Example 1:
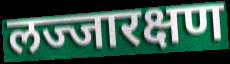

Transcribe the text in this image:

लज्जारक्षण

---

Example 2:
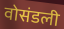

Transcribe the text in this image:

वोसंडली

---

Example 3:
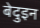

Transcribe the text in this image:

बेदुइन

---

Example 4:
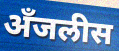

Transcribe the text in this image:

अँजलीस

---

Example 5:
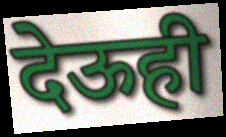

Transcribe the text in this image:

देऊही